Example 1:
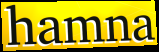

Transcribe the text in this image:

hamna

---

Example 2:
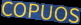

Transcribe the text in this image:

COPUOS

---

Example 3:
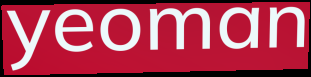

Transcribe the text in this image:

yeoman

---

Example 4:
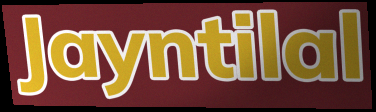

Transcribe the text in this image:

Jayntilal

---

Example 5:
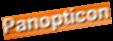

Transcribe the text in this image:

Panopticon